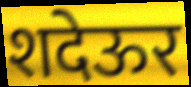
शदेऊर